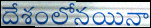
దేశంలోనయినా